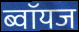
ब्वॉयज